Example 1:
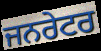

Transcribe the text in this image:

ਜਨਰੇਟਰ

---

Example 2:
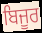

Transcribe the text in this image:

ਬਿਜੂਰ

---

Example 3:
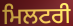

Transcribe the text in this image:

ਮਿਲਟਰੀ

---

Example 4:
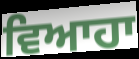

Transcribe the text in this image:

ਵਿਆਹਾ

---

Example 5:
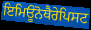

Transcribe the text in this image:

ਇਮਿਊਨੋਥੈਰੇਪਿਸਟ